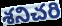
శనిచరి